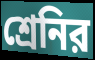
শ্রেনির